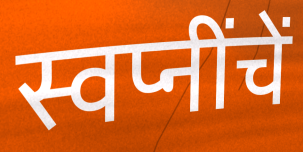
स्वप्नींचें